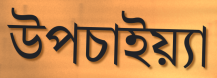
উপচাইয়্যা